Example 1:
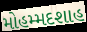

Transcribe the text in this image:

મોહમ્મદશાહ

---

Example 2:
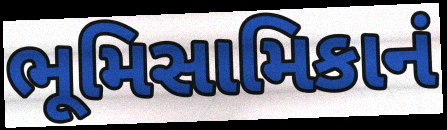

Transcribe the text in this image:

ભૂમિસામિકાનં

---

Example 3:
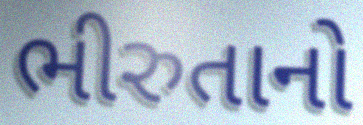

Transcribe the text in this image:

ભીરુતાનો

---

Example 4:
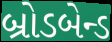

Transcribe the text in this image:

બ્રોડબેન્ડ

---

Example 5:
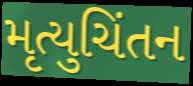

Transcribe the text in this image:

મૃત્યુચિંતન